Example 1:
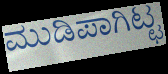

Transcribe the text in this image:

ಮುಡಿಪಾಗಿಟ್ಟ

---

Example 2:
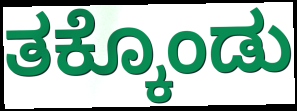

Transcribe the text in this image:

ತಕ್ಕೊಂಡು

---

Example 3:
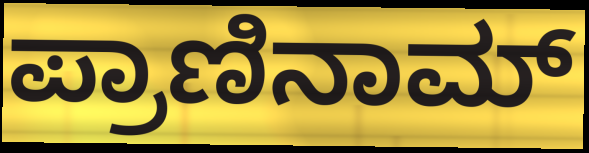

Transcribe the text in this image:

ಪ್ರಾಣಿನಾಮ್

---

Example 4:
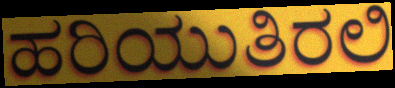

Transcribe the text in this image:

ಹರಿಯುತಿರಲಿ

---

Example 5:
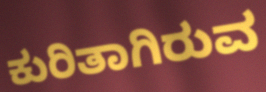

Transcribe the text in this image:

ಕುರಿತಾಗಿರುವ